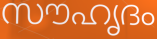
സൗഹൃദം